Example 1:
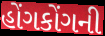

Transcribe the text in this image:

હોંગકોંગની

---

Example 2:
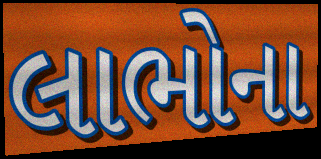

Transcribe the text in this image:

લાભોના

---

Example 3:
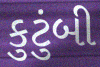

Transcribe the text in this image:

કુટુંબી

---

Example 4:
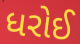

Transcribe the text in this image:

ધરોઈ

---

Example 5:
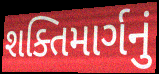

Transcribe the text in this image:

શક્તિમાર્ગનું